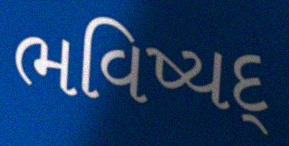
ભવિષ્યદ્